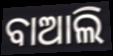
ବାଆଲି